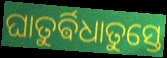
ଘାତୁର୍ଵିଧାତୁସ୍ତେ